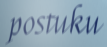
postuku